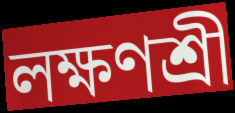
লক্ষণশ্রী